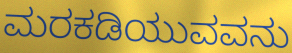
ಮರಕಡಿಯುವವನು